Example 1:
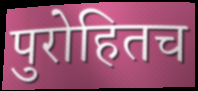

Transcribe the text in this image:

पुरोहितच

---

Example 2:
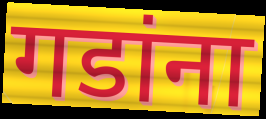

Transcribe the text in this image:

गडांना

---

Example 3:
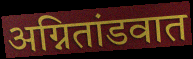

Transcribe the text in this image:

अग्नितांडवात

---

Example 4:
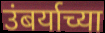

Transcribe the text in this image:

उंबर्याच्या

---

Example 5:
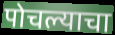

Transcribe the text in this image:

पोचल्याचा